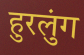
हुरलुंग